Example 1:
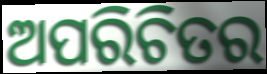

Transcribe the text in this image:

ଅପରିଚିତର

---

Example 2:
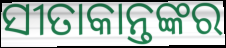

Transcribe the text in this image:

ସୀତାକାନ୍ତଙ୍କର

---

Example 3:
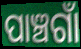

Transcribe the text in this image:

ପାଞ୍ଚଗାଁ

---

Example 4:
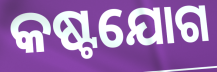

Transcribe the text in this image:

କଷ୍ଟଯୋଗ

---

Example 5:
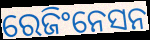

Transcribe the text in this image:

ରେଜିଂନେସନ